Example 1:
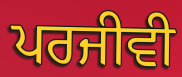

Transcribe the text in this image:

ਪਰਜੀਵੀ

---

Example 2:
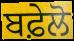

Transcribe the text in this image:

ਬਫ਼ੇਲੋ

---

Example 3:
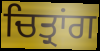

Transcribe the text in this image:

ਚਿਤ੍ਰਾਂਗ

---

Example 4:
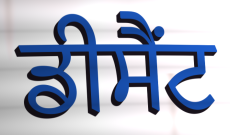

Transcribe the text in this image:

ਡੀਸੈਂਟ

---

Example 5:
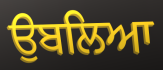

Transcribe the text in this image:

ਉਬਲਿਆ